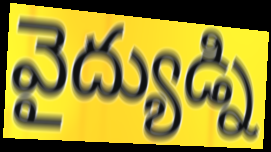
వైద్యుడ్ని